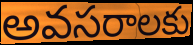
అవసరాలకు